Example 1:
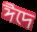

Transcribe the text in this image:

ঈদে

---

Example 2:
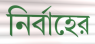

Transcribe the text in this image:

নির্বাহের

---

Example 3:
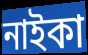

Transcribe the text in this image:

নাইকা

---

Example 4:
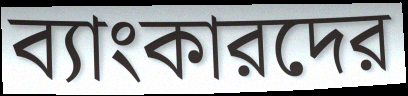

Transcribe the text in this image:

ব্যাংকারদের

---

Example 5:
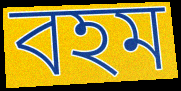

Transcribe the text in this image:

বহম